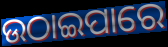
ଉଠାଇପାରେ